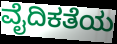
ವೈದಿಕತೆಯ